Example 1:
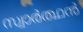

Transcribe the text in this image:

സ്വാർത്ഥൻ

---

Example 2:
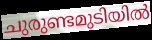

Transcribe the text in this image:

ചുരുണ്ടമുടിയിൽ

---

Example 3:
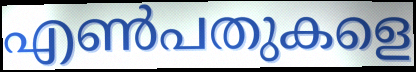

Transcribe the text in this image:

എൺപതുകളെ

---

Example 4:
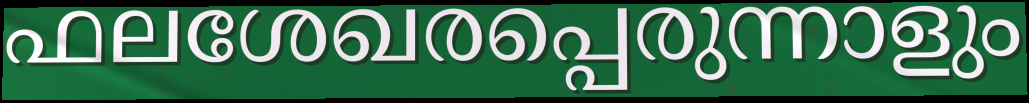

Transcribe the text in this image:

ഫലശേഖരപ്പെരുന്നാളും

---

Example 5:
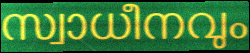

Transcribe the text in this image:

സ്വാധീനവും